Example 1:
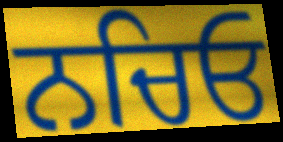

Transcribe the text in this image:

ਨਚਿਓ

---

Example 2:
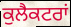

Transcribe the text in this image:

ਕੁਲੈਕਟਰਾਂ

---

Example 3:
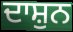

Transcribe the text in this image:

ਦਾਸ਼ੁਨ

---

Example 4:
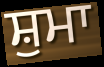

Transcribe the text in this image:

ਸ਼ੁਮਾ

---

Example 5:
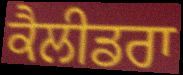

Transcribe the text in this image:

ਕੈਲੀਡਰਾ